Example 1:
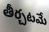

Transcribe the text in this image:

తీర్చటమే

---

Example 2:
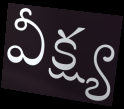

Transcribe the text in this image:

వీక్ష్య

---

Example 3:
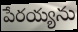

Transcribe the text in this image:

పేరయ్యను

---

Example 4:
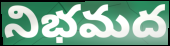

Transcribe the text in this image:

నిభమద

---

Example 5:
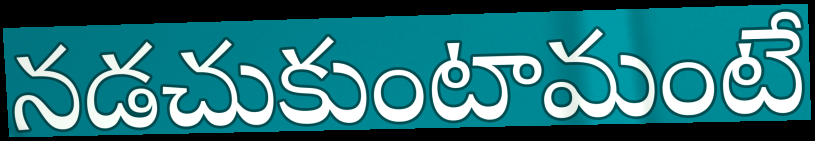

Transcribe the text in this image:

నడచుకుంటామంటే